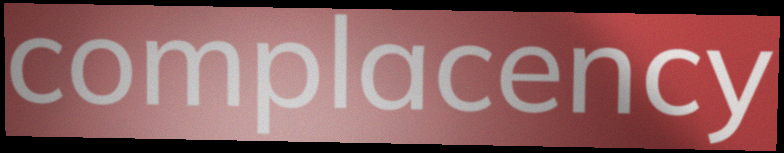
complacency